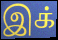
இக்